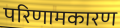
परिणामकारण